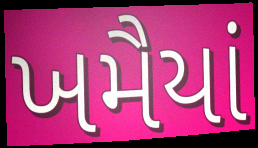
ખમૈયાં